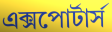
এক্সপোর্টার্স